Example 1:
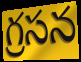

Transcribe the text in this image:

గ్రసన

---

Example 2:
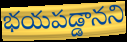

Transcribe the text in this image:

భయపడ్డానని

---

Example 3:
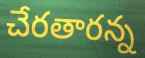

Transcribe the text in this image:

చేరతారన్న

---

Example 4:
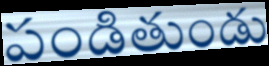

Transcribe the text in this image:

పండితుండు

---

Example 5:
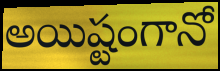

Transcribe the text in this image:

అయిష్టంగానో